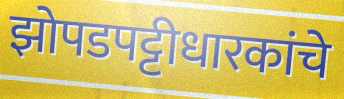
झोपडपट्टीधारकांचे